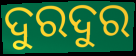
ଦୁରଦୁର